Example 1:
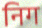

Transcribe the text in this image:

निग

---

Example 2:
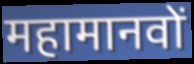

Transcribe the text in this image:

महामानवों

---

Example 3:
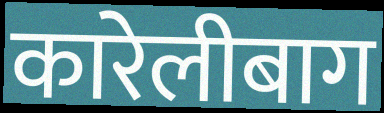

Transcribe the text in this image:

कारेलीबाग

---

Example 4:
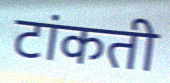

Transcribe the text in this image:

टांकती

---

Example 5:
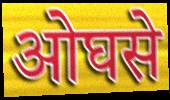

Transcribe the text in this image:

ओघसे